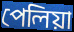
পেলিয়া